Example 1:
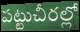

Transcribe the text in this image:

పట్టుచీరల్లో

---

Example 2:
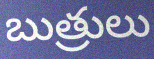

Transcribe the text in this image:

బుత్రులు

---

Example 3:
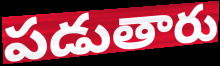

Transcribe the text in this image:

పడుతారు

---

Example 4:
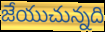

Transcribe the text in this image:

జేయుచున్నది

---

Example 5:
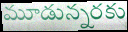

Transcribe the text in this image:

మూడున్నరకు